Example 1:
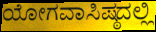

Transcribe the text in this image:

ಯೋಗವಾಸಿಷ್ಠದಲ್ಲಿ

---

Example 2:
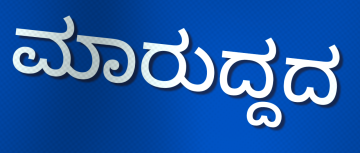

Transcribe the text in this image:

ಮಾರುದ್ದದ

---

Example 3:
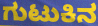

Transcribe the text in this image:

ಗುಟುಕಿನ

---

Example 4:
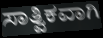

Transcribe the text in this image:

ಸಾತ್ವಿಕವಾಗಿ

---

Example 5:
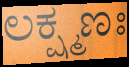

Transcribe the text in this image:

ಲಕ್ಷ್ಮಣಃ